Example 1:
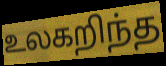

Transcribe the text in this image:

உலகறிந்த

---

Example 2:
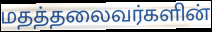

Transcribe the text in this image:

மதத்தலைவர்களின்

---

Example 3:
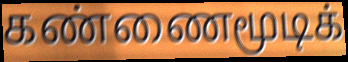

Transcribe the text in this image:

கண்ணைமூடிக்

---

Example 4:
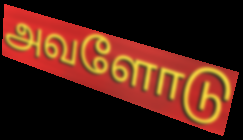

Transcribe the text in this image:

அவளோடு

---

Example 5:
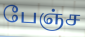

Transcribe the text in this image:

பேஞ்ச